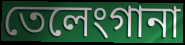
তেলেংগানা